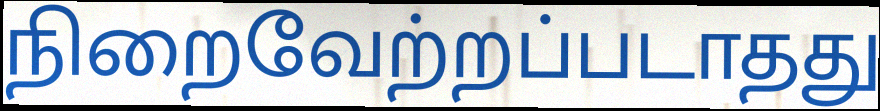
நிறைவேற்றப்படாதது